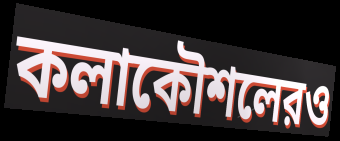
কলাকৌশলেরও